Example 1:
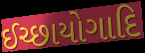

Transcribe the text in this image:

ઈચ્છાયોગાદિ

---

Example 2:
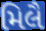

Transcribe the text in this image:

મિલૈ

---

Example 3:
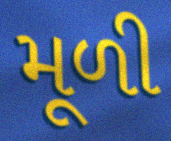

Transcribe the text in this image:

મૂળી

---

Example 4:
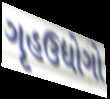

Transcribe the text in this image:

ગૃહઉદ્યોગો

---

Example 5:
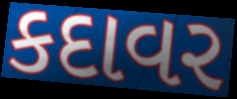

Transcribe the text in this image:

કદાવર